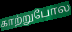
காற்றுபோல